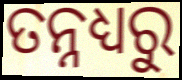
ତନ୍ନଧ୍ୟରୁ